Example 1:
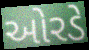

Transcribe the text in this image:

ઓરડે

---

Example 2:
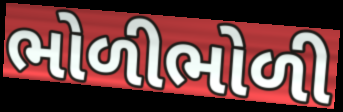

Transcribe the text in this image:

ભોળીભોળી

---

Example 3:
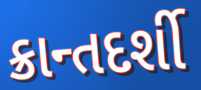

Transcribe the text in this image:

ક્રાન્તદર્શી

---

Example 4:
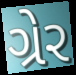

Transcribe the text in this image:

ગ્રેર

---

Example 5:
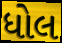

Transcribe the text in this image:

ધોલ